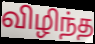
விழிந்த